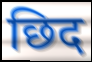
छिद